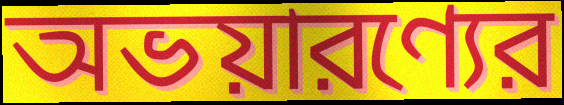
অভয়ারণ্যের